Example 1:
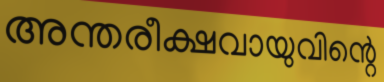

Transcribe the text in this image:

അന്തരീക്ഷവായുവിന്റെ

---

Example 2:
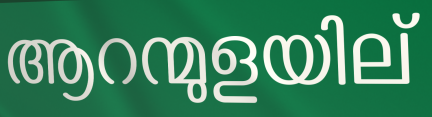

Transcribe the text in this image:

ആറന്മുളയില്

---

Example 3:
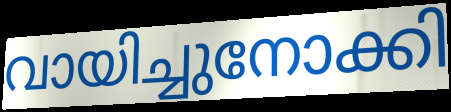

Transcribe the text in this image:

വായിച്ചുനോക്കി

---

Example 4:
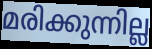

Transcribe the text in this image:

മരിക്കുന്നില്ല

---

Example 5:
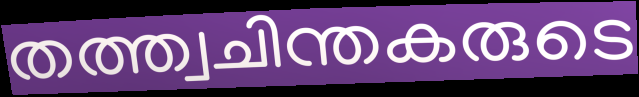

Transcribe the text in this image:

തത്ത്വചിന്തകരുടെ